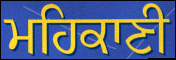
ਮਹਿਕਾਣੀ